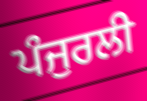
ਪੰਜੁਰਲੀ